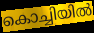
കൊച്ചിയിൽ